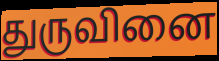
துருவினை